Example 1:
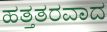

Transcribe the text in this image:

ಹತ್ತತರವಾದ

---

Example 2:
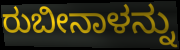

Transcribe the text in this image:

ರುಬೀನಾಳನ್ನು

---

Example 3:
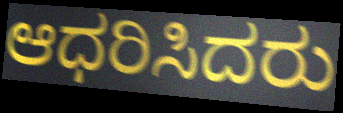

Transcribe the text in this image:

ಆಧರಿಸಿದರು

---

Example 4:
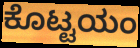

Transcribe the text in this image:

ಕೊಟ್ಟಯಂ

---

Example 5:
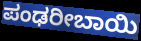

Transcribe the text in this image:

ಪಂಢರೀಬಾಯಿ